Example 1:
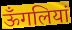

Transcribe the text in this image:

ऊँगलियां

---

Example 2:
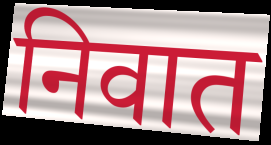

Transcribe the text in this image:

निवात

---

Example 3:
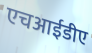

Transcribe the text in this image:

एचआईडीए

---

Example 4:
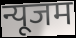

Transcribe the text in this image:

न्यूजम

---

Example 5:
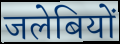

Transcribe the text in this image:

जलेबियों